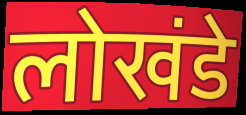
लोखंडे